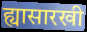
ह्यासारखी